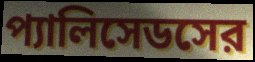
প্যালিসেডসের